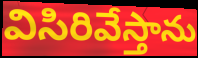
విసిరివేస్తాను